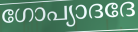
ഗോപ്യാദദേ